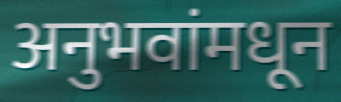
अनुभवांमधून